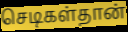
செடிகள்தான்